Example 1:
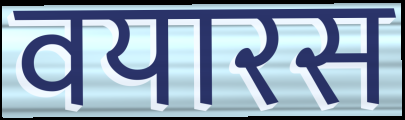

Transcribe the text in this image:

वयारस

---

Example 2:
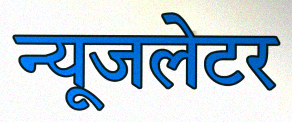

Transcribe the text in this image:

न्यूजलेटर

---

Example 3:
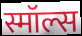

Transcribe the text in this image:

स्मॉल्स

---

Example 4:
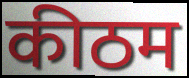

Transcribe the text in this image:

कीठम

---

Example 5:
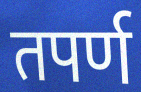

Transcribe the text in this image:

तपर्ण